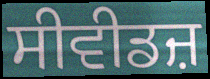
ਸੀਵੀਡਜ਼